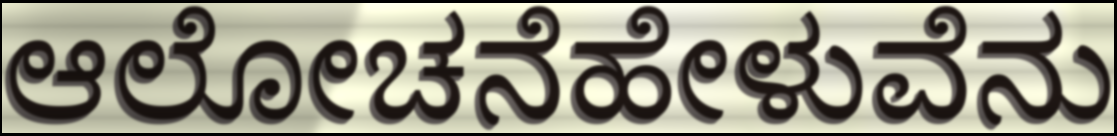
ಆಲೋಚನೆಹೇಳುವೆನು